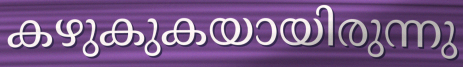
കഴുകുകയായിരുന്നു